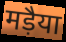
मड़ैया